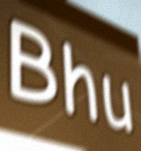
Bhu